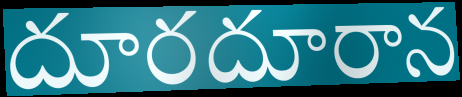
దూరదూరాన